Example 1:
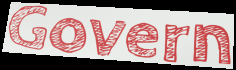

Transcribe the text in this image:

Govern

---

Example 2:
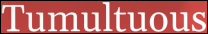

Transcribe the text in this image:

Tumultuous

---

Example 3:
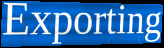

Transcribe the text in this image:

Exporting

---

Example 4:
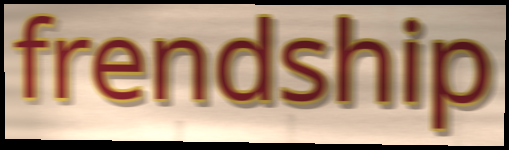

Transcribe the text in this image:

frendship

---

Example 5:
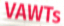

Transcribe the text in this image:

VAWTs